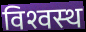
विश्वस्थ